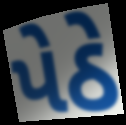
પેઠે